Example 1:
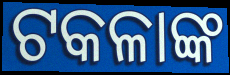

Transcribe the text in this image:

ଟକଳାଙ୍କ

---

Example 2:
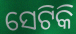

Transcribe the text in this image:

ସେଟିକି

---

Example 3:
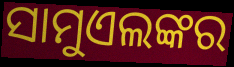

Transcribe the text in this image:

ସାମୁଏଲଙ୍କର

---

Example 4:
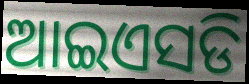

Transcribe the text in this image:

ଆଇଏସଡି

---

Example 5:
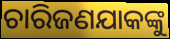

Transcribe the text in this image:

ଚାରିଜଣଯାକଙ୍କୁ